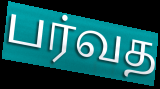
பர்வத